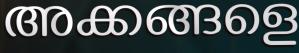
അക്കങ്ങളെ